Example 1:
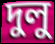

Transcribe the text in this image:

দুলু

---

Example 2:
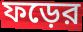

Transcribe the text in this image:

ফড়ের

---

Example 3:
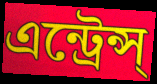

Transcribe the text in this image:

এন্ট্রেন্স্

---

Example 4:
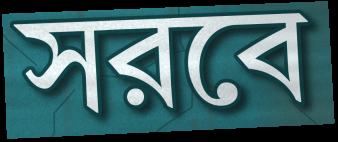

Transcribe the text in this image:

সরবে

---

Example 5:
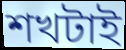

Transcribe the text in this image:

শখটাই